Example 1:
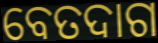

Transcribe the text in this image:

ବେତଦାଗ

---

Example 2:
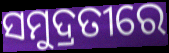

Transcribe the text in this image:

ସମୁଦ୍ରତୀରେ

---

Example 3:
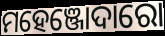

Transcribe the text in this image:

ମହେଞ୍ଜୋଦାରୋ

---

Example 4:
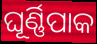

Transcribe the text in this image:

ଘୂର୍ଣ୍ଣିପାକ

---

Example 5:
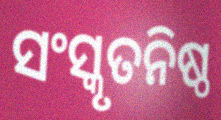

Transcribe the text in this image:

ସଂସ୍କୃତନିଷ୍ଠ